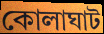
কোলাঘাট